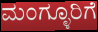
ಮಂಗ್ಳೂರಿಗೆ